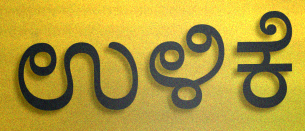
ಉಳಿಕೆ